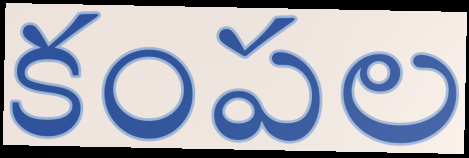
కంపల